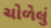
ચોળેલું